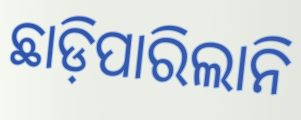
ଛାଡ଼ିପାରିଲାନି